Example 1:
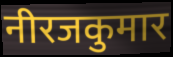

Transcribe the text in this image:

नीरजकुमार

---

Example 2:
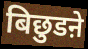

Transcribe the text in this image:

बिछुडऩे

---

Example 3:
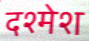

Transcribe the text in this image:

दश्मेश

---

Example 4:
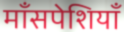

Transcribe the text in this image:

माँसपेशियाँ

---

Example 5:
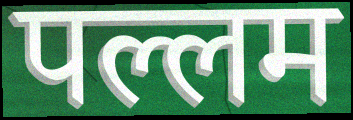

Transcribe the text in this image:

पल्लम